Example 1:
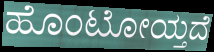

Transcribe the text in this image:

ಹೊಂಟೋಯ್ತದೆ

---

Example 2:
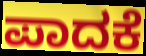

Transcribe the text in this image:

ಪಾದಕೆ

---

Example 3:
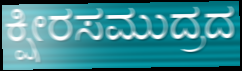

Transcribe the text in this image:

ಕ್ಷೀರಸಮುದ್ರದ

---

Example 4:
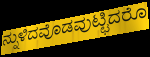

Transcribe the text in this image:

ನ್ನುಳಿದವೊಡವುಟ್ಟಿದರೊ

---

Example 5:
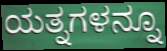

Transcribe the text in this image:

ಯತ್ನಗಳನ್ನೂ